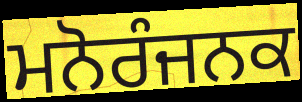
ਮਨੋਰੰਜਨਕ